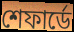
শেফার্ডে